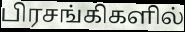
பிரசங்கிகளில்